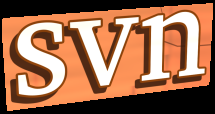
svn